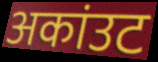
अकांउट